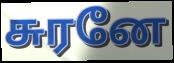
சுரனே